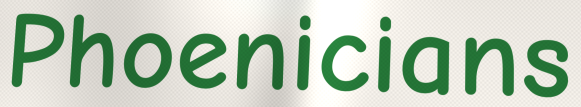
Phoenicians